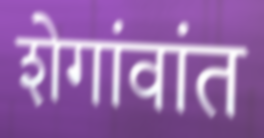
शेगांवांत